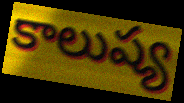
కాలుష్య